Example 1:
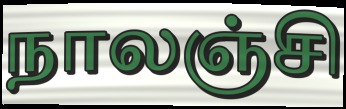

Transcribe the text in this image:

நாலஞ்சி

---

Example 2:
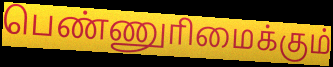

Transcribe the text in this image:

பெண்ணுரிமைக்கும்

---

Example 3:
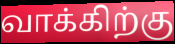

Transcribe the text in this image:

வாக்கிற்கு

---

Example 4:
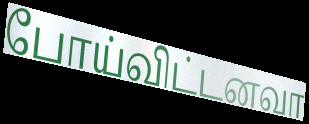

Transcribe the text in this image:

போய்விட்டனவா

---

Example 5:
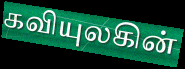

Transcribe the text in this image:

கவியுலகின்